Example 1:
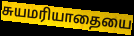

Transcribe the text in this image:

சுயமரியாதையை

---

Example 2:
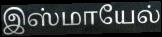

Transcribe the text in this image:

இஸ்மாயேல்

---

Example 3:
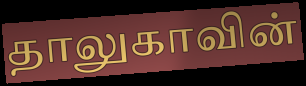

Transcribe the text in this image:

தாலுகாவின்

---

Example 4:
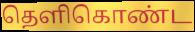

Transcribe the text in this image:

தெளிகொண்ட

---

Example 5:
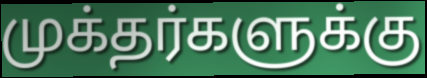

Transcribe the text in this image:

முக்தர்களுக்கு